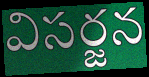
విసర్జన